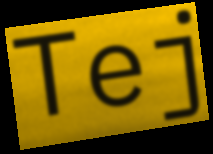
Tej